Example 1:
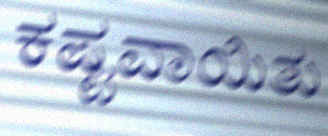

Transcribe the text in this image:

ಕಷ್ಟವಾಯಿತು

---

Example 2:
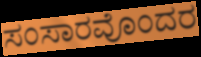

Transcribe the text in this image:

ಸಂಸಾರವೊಂದರ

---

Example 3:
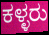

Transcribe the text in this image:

ಕಳ್ಳರು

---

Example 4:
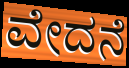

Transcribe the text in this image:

ವೇದನೆ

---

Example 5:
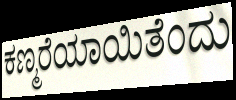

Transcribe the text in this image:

ಕಣ್ಮರೆಯಾಯಿತೆಂದು